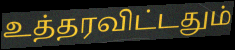
உத்தரவிட்டதும்